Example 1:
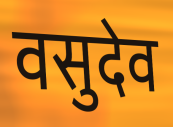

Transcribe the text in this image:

वसुदेव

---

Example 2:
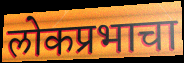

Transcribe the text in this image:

लोकप्रभाचा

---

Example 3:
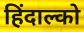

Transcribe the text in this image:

हिंदाल्को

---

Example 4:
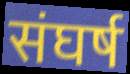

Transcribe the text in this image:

संघर्ष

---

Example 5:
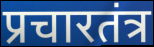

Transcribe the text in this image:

प्रचारतंत्र